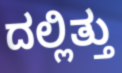
ದಲ್ಲಿತ್ತು